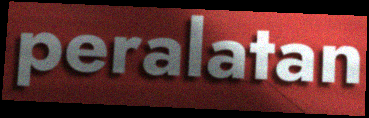
peralatan